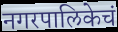
नगरपालिकेचं